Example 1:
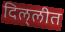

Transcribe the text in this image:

दिल्लीत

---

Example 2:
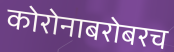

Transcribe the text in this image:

कोरोनाबरोबरच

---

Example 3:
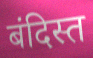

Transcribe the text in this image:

बंदिस्त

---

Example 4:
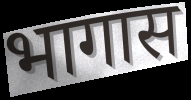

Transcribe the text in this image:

भागास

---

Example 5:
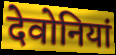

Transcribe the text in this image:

देवोनियां